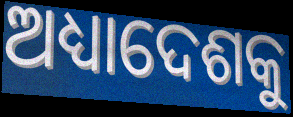
ଅଧ୍ୟାଦେଶକୁ